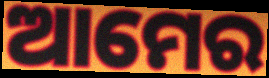
ଆମେର